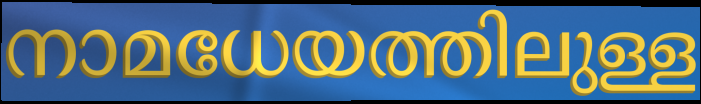
നാമധേയത്തിലുള്ള